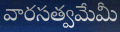
వారసత్వమేమీ